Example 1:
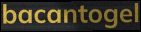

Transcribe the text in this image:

bacantogel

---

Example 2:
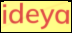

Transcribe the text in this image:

ideya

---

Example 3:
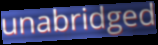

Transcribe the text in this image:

unabridged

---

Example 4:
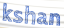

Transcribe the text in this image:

kshan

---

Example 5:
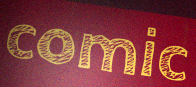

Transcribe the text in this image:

comic